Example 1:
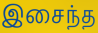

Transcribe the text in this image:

இசைந்த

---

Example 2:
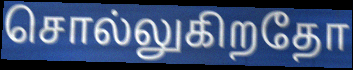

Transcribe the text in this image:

சொல்லுகிறதோ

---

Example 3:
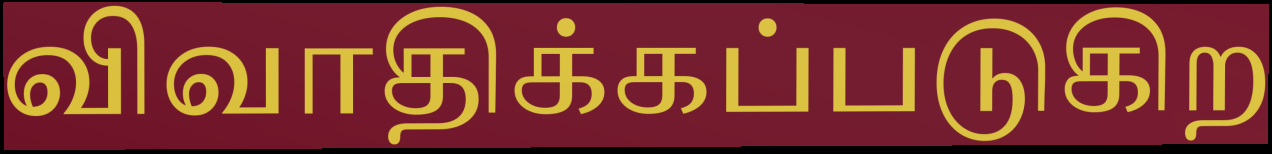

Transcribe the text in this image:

விவாதிக்கப்படுகிற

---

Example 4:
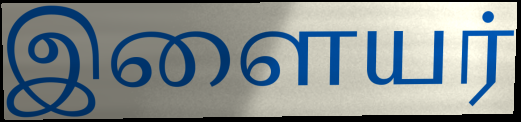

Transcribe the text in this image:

இளையர்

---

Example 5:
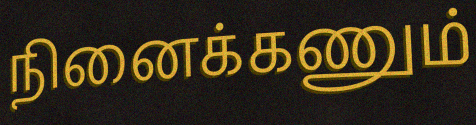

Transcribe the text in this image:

நினைக்கணும்